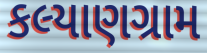
કલ્યાણગ્રામ